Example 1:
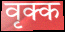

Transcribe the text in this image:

वृक्क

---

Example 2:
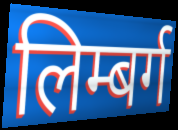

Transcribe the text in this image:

लिम्बर्ग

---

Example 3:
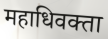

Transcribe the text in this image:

महाधिवक्ता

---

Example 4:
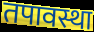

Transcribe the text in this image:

तपावस्था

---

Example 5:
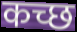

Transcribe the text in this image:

कच्छ